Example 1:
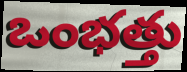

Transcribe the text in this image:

ఒంభత్తు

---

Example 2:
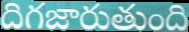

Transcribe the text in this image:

దిగజారుతుంది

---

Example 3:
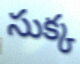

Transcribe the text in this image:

సుక్క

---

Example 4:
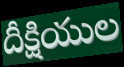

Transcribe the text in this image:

దీక్షియుల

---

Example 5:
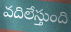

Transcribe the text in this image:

వదిలేస్తుంది